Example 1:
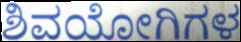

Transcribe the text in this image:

ಶಿವಯೋಗಿಗಳ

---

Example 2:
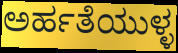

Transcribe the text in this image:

ಅರ್ಹತೆಯುಳ್ಳ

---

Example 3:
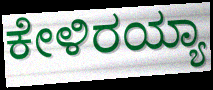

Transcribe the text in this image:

ಕೇಳಿರಯ್ಯಾ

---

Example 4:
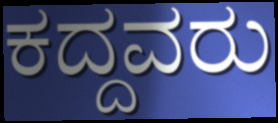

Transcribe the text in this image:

ಕದ್ದವರು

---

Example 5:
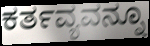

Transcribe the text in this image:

ಕರ್ತವ್ಯವನ್ನೂ